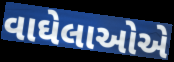
વાઘેલાઓએ